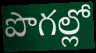
పొగల్లో